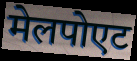
मेलपोएट